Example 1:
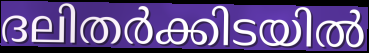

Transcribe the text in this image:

ദലിതർക്കിടയിൽ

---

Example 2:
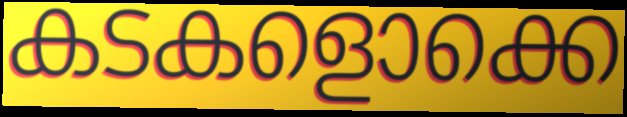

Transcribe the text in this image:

കടകളൊക്കെ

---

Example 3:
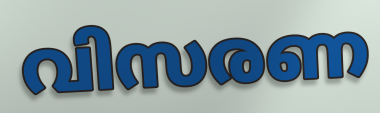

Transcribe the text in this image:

വിസരണ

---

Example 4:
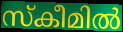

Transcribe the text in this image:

സ്കീമിൽ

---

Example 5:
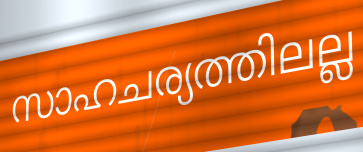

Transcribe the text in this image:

സാഹചര്യത്തിലല്ല